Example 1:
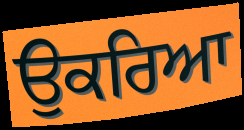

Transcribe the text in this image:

ਉਕਰਿਆ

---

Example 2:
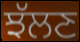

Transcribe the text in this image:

ਝੱਲਣ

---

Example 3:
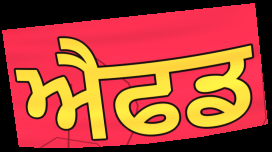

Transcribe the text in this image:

ਐਫਡ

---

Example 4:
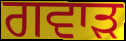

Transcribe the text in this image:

ਗਵਾੜ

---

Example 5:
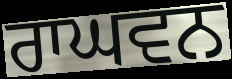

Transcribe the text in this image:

ਰਾਘਵਨ